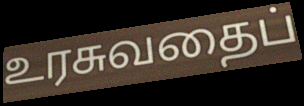
உரசுவதைப்